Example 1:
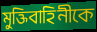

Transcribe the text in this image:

মুক্তিবাহিনীকে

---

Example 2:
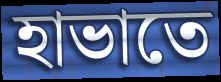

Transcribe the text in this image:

হাভাতে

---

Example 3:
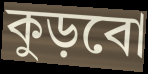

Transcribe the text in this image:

কুড়বো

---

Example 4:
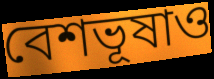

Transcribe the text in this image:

বেশভূষাও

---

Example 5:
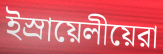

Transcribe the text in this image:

ইস্রায়েলীয়েরা